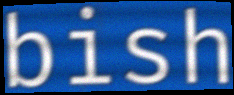
bish